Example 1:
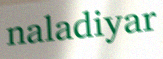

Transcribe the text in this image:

naladiyar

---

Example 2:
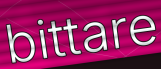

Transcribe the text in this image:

bittare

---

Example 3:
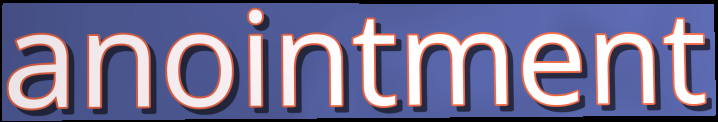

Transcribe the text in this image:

anointment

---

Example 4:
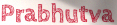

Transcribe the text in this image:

Prabhutva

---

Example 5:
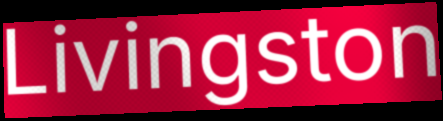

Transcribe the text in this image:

Livingston